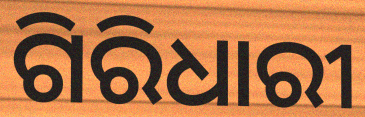
ଗିରିଧାରୀ